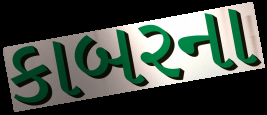
કાબરના